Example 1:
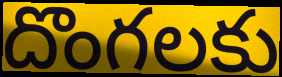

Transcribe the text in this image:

దొంగలకు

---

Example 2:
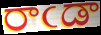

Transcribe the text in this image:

రాఁడా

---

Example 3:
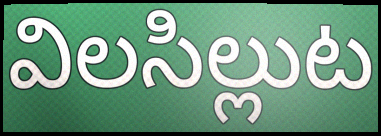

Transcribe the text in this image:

విలసిల్లుట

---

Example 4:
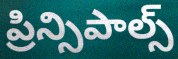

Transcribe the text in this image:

ప్రిన్సిపాల్స్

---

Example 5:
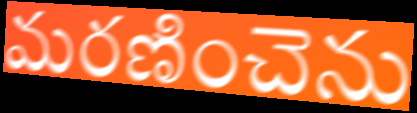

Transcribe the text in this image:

మరణించెను